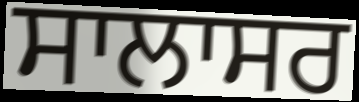
ਸਾਲਾਸਰ